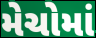
મેચોમાં